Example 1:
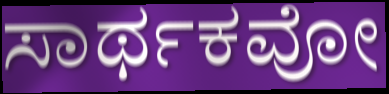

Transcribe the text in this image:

ಸಾರ್ಥಕವೋ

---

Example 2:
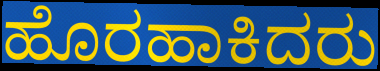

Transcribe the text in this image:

ಹೊರಹಾಕಿದರು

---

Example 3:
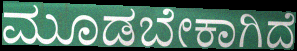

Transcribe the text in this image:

ಮೂಡಬೇಕಾಗಿದೆ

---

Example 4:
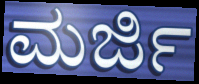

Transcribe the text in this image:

ಮರ್ಜಿ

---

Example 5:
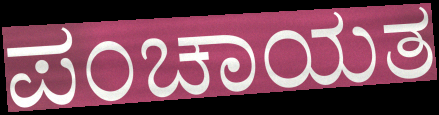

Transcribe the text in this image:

ಪಂಚಾಯತ